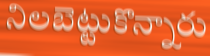
నిలబెట్టుకొన్నారు